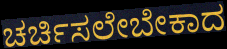
ಚರ್ಚಿಸಲೇಬೇಕಾದ